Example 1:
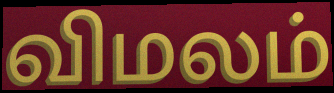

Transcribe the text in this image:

விமலம்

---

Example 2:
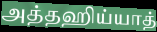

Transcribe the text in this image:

அத்தஹிய்யாத்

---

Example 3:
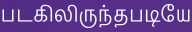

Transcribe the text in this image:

படகிலிருந்தபடியே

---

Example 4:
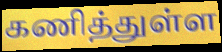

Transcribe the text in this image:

கணித்துள்ள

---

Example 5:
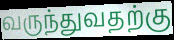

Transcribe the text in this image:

வருந்துவதற்கு